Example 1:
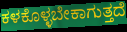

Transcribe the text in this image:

ಕಳಕೊಳ್ಳಬೇಕಾಗುತ್ತದೆ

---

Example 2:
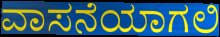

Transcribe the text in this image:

ವಾಸನೆಯಾಗಲಿ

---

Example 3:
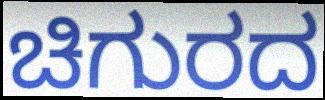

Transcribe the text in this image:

ಚಿಗುರದ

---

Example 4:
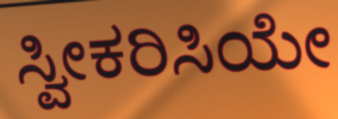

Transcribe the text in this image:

ಸ್ವೀಕರಿಸಿಯೇ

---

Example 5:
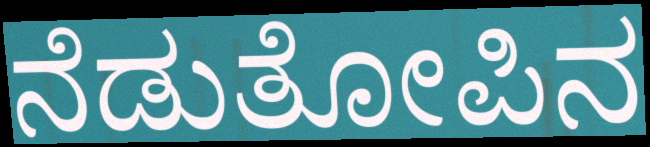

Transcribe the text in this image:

ನೆಡುತೋಪಿನ